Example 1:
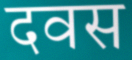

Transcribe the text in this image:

दवस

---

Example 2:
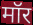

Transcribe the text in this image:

मॉर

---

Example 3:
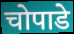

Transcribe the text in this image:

चोपाडे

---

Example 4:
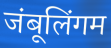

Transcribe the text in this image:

जंबूलिंगम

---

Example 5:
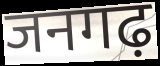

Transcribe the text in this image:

जनगढ़